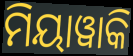
ମିୟାୱାକି